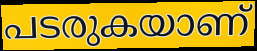
പടരുകയാണ്